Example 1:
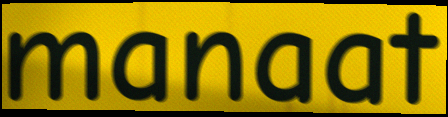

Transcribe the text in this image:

manaat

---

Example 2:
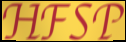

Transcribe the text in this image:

HFSP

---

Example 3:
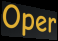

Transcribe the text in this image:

Oper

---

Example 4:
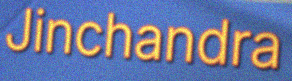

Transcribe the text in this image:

Jinchandra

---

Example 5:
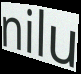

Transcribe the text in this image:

nilu